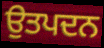
ਉਤਪਦਨ